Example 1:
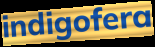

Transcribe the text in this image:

indigofera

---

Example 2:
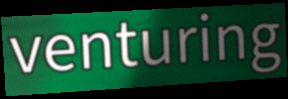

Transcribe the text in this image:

venturing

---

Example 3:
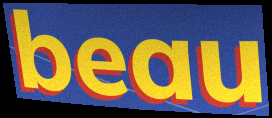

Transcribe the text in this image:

beau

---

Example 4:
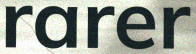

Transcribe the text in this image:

rarer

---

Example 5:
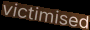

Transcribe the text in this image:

victimised